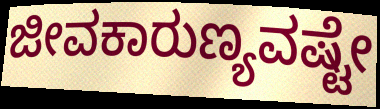
ಜೀವಕಾರುಣ್ಯವಷ್ಟೇ